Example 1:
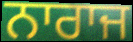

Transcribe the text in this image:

ਨਾਰਾਜ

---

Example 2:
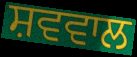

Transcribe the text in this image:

ਸ਼ਵਵਾਲ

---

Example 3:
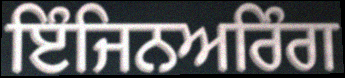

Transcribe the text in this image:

ਇੰਜਿਨਅਰਿੰਗ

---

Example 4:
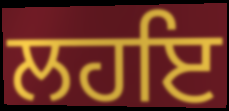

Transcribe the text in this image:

ਲਹਇ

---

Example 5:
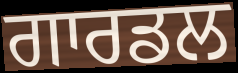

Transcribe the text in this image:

ਗਾਰਡਲ